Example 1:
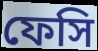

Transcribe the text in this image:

ফেসি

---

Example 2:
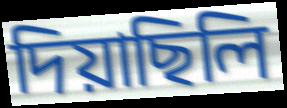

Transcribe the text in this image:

দিয়াছিলি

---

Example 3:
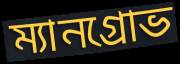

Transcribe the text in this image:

ম্যানগ্রোভ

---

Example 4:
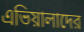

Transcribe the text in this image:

এভিয়ালাদের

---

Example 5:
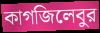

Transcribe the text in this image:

কাগজিলেবুর